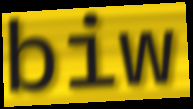
biw